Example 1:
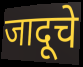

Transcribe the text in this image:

जादूचे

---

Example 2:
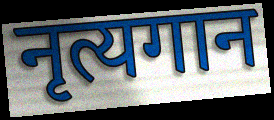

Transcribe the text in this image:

नृत्यगान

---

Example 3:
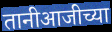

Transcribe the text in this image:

तानीआजीच्या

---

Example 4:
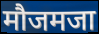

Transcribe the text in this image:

मौजमजा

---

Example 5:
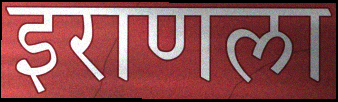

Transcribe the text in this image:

इराणला